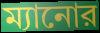
ম্যানোর